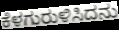
ಕೆಳಗುರುಳಿಸಿದನು